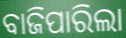
ବାଜିପାରିଲା